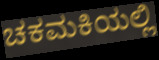
ಚಕಮಕಿಯಲ್ಲಿ